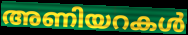
അണിയറകൾ